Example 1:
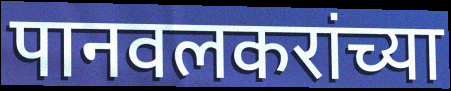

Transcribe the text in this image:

पानवलकरांच्या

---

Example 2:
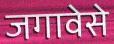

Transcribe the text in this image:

जगावेसे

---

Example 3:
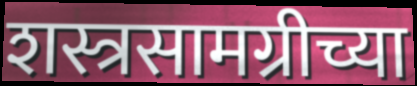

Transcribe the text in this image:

शस्त्रसामग्रीच्या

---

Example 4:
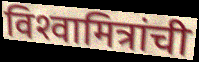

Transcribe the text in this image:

विश्वामित्रांची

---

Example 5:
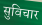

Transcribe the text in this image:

सुविचार